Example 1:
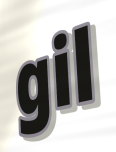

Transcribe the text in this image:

gil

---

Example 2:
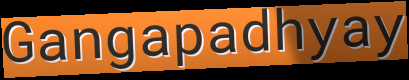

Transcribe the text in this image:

Gangapadhyay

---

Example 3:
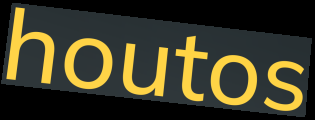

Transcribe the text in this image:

houtos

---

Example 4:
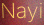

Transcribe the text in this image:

Nayi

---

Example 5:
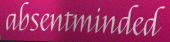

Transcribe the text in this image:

absentminded